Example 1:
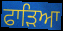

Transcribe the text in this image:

ਫਾੜਿਆ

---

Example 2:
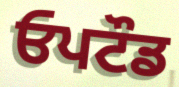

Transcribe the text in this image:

ਓਪਟੌਡ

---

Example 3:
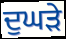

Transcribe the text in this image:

ਦੁਘੜੇ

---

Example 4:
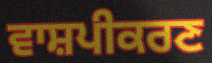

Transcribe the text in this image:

ਵਾਸ਼ਪੀਕਰਣ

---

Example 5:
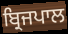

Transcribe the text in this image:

ਬ੍ਰਿਜਪਾਲ